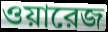
ওয়ারেজ